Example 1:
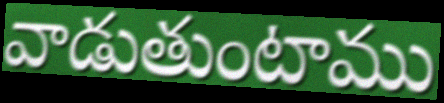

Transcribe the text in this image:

వాడుతుంటాము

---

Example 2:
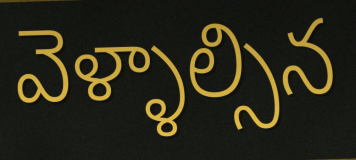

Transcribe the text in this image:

వెళ్ళాల్సిన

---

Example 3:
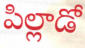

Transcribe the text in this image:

పిల్లాడో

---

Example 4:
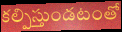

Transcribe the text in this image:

కల్పిస్తుండటంతో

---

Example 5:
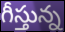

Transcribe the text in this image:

గీస్తున్న